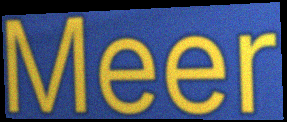
Meer